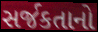
સર્જકતાનો